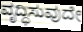
ವೃದ್ಧಿಸುವುದೇ